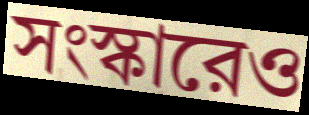
সংস্কারেও